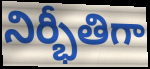
నిర్భీతిగా